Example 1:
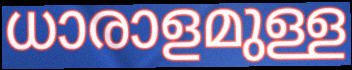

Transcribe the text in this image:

ധാരാളമുള്ള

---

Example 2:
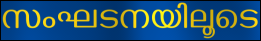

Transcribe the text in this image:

സംഘടനയിലൂടെ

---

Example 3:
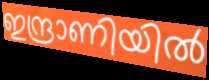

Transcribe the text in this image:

ഇന്ദ്രാണിയിൽ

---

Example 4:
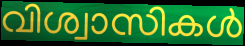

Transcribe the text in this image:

വിശ്വാസികൾ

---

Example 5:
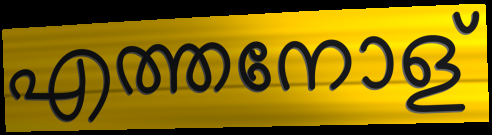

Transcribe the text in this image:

എത്തനോള്